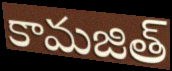
కామజిత్